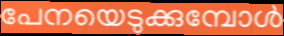
പേനയെടുക്കുമ്പോൾ